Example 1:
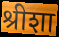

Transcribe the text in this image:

श्रीशा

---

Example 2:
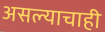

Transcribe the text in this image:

असल्याचाही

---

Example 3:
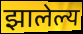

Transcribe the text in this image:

झालेल्य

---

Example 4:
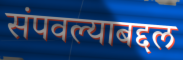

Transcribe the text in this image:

संपवल्याबद्दल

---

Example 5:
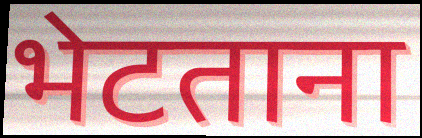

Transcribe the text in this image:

भेटताना